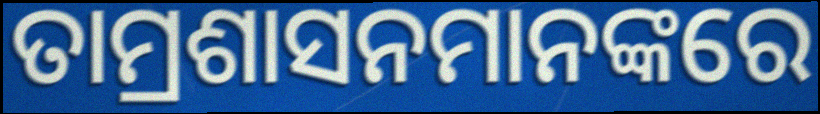
ତାମ୍ରଶାସନମାନଙ୍କରେ